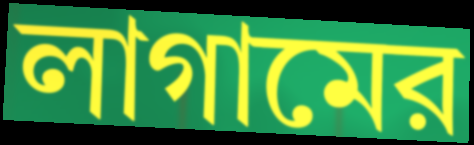
লাগামের